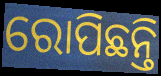
ରୋପିଛନ୍ତି